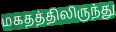
மகதத்திலிருந்து